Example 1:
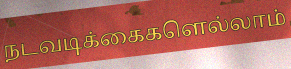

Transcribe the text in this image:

நடவடிக்கைகளெல்லாம்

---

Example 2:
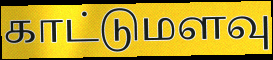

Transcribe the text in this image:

காட்டுமளவு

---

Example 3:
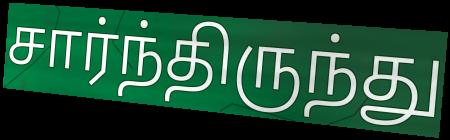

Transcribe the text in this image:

சார்ந்திருந்து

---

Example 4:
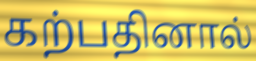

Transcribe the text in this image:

கற்பதினால்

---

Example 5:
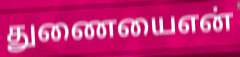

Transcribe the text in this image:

துணையைஎன்